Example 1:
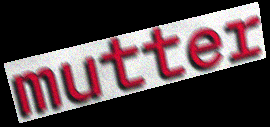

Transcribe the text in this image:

mutter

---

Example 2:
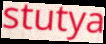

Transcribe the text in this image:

stutya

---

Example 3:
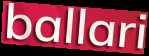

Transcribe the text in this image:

ballari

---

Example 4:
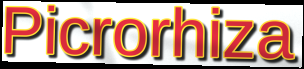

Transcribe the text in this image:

Picrorhiza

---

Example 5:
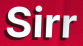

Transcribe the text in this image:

Sirr